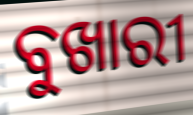
ବୁଖାରୀ